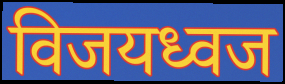
विजयध्वज